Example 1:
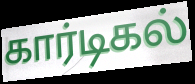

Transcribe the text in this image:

கார்டிகல்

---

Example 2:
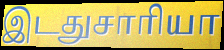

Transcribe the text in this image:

இடதுசாரியா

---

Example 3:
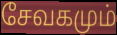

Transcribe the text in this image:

சேவகமும்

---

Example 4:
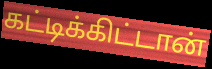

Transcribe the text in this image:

கட்டிக்கிட்டான்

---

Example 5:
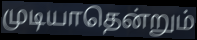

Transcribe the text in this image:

முடியாதென்றும்